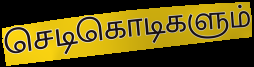
செடிகொடிகளும்